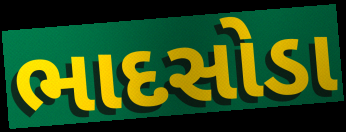
ભાદસોડા